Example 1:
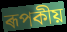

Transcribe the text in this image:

ৰূপকীয়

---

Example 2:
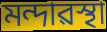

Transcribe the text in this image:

মন্দাৱস্থা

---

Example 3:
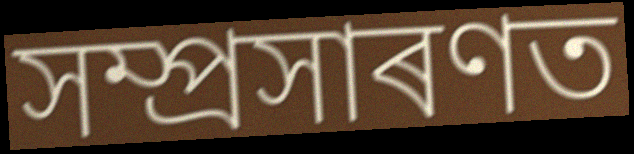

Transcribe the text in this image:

সম্প্ৰসাৰণত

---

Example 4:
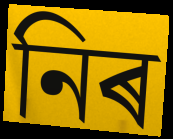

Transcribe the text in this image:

নিৰ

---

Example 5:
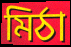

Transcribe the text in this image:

মিঠা